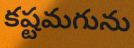
కష్టమగును